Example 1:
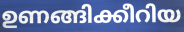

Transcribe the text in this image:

ഉണങ്ങിക്കീറിയ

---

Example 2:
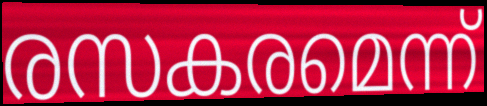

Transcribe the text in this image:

രസകരമെന്ന്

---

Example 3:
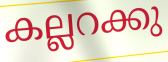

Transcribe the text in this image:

കല്ലറക്കു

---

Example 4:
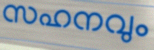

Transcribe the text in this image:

സഹനവും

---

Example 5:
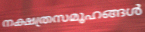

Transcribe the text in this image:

നക്ഷത്രസമൂഹങ്ങൾ